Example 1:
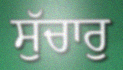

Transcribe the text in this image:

ਸੁੱਚਾਰੁ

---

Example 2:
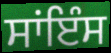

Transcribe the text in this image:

ਸਾਂਇੰਸ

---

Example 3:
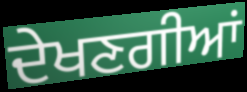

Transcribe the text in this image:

ਦੇਖਣਗੀਆਂ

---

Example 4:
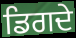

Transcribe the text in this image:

ਡਿਗਦੇ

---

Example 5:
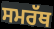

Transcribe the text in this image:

ਸਮਰੱਥ